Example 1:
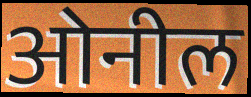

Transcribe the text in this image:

ओनील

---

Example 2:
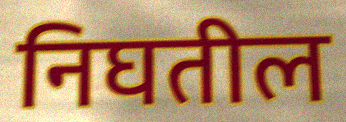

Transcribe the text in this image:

निघतील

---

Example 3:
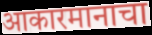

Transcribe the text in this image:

आकारमानाचा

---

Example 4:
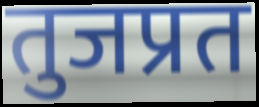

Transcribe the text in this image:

तुजप्रत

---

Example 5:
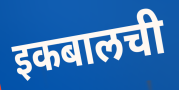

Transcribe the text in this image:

इकबालची